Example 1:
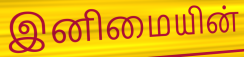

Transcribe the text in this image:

இனிமையின்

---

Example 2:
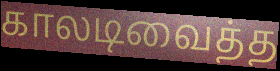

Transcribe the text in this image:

காலடிவைத்த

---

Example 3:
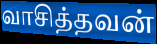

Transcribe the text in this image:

வாசித்தவன்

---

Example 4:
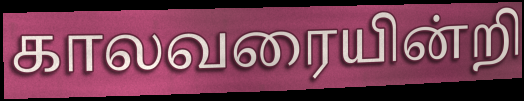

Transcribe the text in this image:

காலவரையின்றி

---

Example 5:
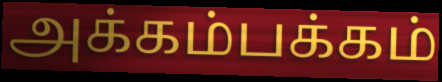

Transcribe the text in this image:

அக்கம்பக்கம்